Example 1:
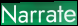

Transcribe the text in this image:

Narrate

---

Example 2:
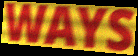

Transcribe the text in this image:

WAYS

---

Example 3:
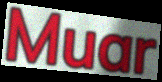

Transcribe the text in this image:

Muar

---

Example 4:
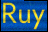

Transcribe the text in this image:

Ruy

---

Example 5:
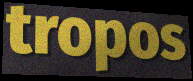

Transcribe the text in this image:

tropos